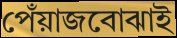
পেঁয়াজবোঝাই